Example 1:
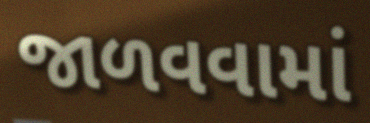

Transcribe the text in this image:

જાળવવામાં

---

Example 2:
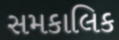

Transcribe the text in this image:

સમકાલિક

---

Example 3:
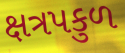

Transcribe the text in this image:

ક્ષત્રપકુળ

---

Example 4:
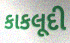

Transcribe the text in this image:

કાકલૂદી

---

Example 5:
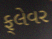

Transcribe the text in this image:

ફ્‌લેવર